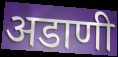
अडाणी